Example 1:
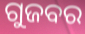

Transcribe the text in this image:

ଗୁଜବର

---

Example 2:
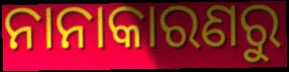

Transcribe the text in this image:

ନାନାକାରଣରୁ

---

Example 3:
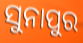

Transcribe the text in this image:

ସୁନାପୁର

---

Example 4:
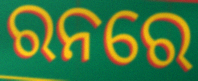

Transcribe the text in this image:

ରନରେ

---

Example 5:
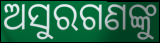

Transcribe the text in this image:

ଅସୁରଗଣଙ୍କୁ